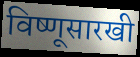
विष्णूसारखी